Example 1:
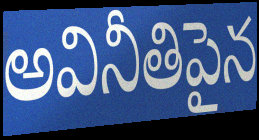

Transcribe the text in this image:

అవినీతిపైన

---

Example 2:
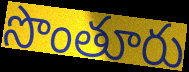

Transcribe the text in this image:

సొంతూరు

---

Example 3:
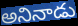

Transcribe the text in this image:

అనినాడు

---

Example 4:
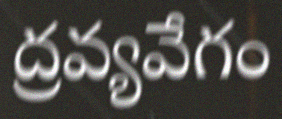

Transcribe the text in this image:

ద్రవ్యవేగం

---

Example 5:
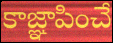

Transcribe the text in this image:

కాజ్ఞాపించే